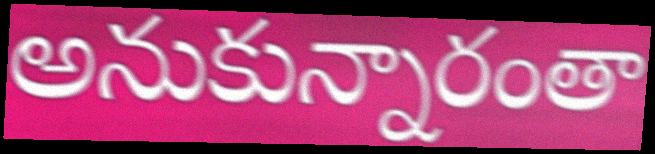
అనుకున్నారంతా